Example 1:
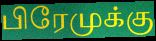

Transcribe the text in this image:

பிரேமுக்கு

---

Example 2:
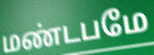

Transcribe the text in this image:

மண்டபமே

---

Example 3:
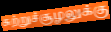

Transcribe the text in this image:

சுற்றுச்சூழலுக்கு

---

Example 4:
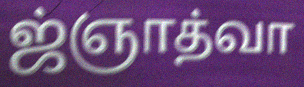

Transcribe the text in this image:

ஜ்ஞாத்வா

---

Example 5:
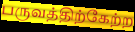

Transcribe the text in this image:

பருவத்திற்கேற்ற